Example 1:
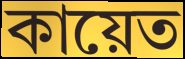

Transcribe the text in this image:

কায়েত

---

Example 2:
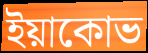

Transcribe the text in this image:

ইয়াকোভ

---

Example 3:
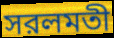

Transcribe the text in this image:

সরলমতী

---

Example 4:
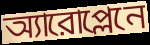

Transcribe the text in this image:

অ্যারোপ্লেনে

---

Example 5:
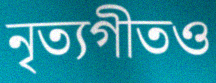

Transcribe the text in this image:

নৃত্যগীতও